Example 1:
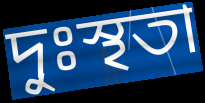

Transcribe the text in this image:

দুঃস্থতা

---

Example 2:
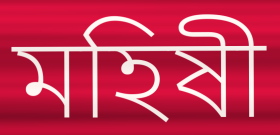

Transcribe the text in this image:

মহিষী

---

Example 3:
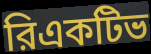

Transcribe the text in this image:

রিএকটিভ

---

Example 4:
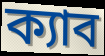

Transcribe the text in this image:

ক্যাব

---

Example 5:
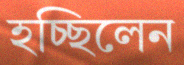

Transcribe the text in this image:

হচ্ছিলেন